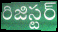
రిజిస్టర్